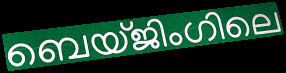
ബെയ്ജിംഗിലെ